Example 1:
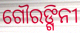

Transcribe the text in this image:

ଗୌରଙ୍ଗିନୀ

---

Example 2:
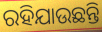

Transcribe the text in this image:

ରହିଯାଉଛନ୍ତି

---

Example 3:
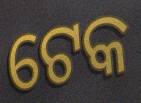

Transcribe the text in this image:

ଟେକ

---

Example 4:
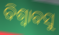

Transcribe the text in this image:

ବିଶ୍ୱାବସୁ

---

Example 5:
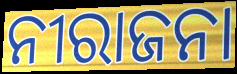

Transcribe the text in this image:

ନୀରାଜନା